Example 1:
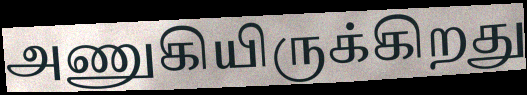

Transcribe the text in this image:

அணுகியிருக்கிறது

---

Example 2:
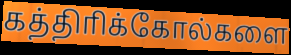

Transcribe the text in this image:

கத்திரிக்கோல்களை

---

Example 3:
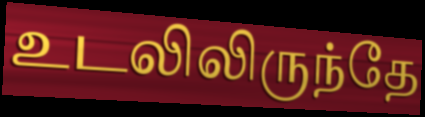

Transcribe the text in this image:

உடலிலிருந்தே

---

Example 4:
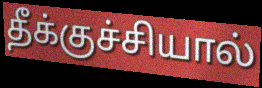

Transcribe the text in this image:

தீக்குச்சியால்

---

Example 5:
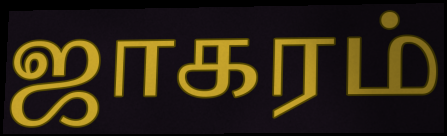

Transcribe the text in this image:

ஜாகரம்